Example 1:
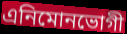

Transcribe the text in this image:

এনিমোনভোগী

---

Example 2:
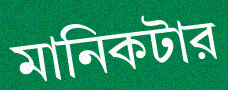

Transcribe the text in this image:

মানিকটার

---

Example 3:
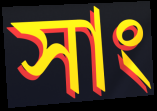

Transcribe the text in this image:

সাং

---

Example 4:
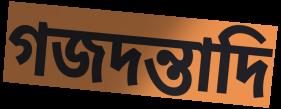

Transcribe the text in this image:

গজদন্তাদি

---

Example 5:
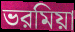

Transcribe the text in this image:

ভরমিয়া